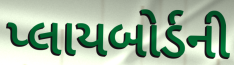
પ્લાયબોર્ડની